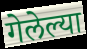
गेलेल्या